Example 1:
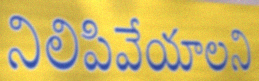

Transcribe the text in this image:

నిలిపివేయాలని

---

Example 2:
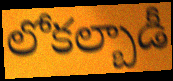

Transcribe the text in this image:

లోకల్బాడీ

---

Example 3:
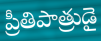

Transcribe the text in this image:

ప్రీతిపాత్రుడై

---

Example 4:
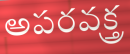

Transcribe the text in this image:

అపరవక్త్ర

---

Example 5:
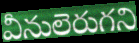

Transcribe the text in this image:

వీనులెరుగని